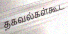
தகவல்கள்கூட